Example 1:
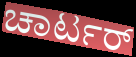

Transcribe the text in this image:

ಚಾರ್ಟರ್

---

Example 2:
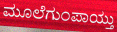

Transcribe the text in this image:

ಮೂಲೆಗುಂಪಾಯ್ತು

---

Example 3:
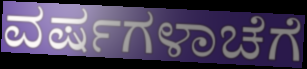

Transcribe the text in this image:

ವರ್ಷಗಳಾಚೆಗೆ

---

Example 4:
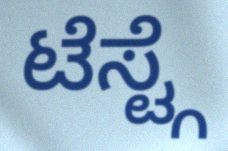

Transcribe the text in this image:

ಟೆಸ್ಟ್ಗೆ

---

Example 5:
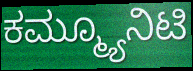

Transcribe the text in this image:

ಕಮ್ಮ್ಯೂನಿಟಿ